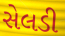
સેલડી